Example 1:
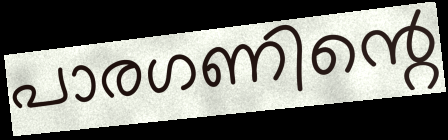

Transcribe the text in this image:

പാരഗണിന്റെ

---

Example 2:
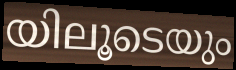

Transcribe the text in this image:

യിലൂടെയും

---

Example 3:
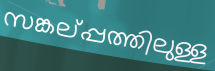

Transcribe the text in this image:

സങ്കല്പ്പത്തിലുള്ള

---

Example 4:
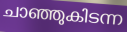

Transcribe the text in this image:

ചാഞ്ഞുകിടന്ന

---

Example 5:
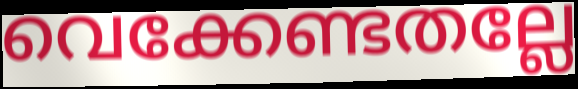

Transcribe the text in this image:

വെക്കേണ്ടതല്ലേ